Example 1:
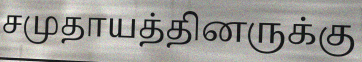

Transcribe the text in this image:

சமுதாயத்தினருக்கு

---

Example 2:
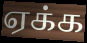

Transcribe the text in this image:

ஏக்க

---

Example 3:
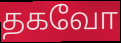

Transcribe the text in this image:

தகவோ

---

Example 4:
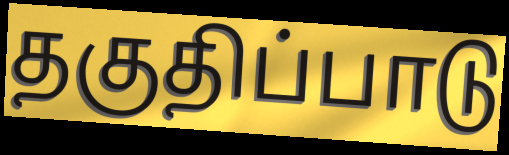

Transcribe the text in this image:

தகுதிப்பாடு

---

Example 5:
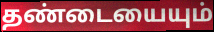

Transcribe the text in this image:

தண்டையையும்